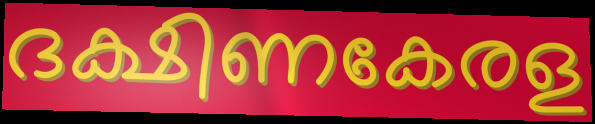
ദക്ഷിണകേരള